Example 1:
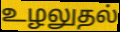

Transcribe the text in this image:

உழலுதல்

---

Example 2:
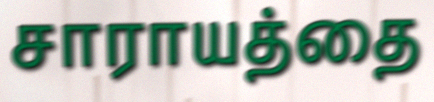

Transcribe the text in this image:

சாராயத்தை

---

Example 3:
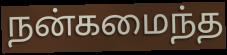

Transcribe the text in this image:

நன்கமைந்த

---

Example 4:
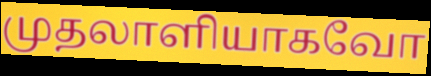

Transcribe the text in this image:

முதலாளியாகவோ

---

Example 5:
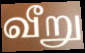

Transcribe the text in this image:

வீறு